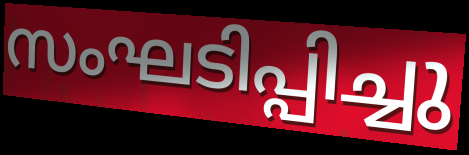
സംഘടിപ്പിച്ചു